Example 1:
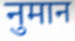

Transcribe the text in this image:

नुमान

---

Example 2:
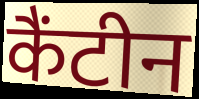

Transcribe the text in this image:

कैंटीन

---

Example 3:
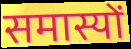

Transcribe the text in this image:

समास्यों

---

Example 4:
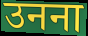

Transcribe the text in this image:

उनना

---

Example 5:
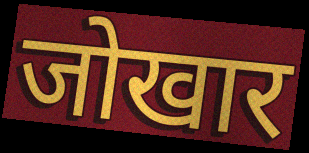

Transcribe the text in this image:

जोखार